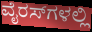
ವೈರಸ್‌ಗಳಲ್ಲಿ